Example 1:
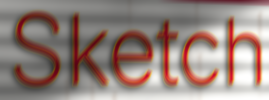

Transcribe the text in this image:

Sketch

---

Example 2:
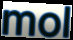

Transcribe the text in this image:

mol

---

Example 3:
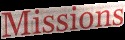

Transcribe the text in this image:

Missions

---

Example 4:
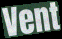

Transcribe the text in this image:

Vent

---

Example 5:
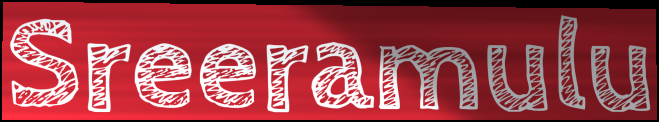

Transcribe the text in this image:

Sreeramulu